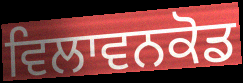
ਵਿਲਾਵਨਕੋਡ